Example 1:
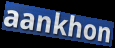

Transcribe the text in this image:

aankhon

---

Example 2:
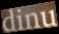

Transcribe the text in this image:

dinu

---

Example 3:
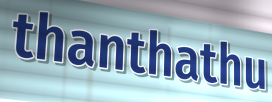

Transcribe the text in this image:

thanthathu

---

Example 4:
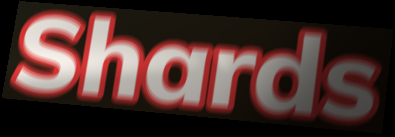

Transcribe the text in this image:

Shards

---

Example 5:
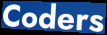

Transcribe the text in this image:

Coders